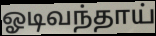
ஓடிவந்தாய்